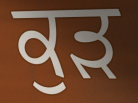
ਕੁੜ